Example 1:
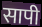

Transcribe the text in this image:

सापी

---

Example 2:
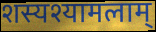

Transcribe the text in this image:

शस्यश्यामलाम्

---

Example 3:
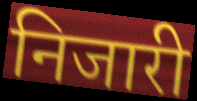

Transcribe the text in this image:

निजारी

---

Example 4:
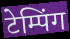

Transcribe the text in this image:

टेम्पिंग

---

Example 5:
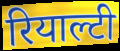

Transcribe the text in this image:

रियाल्टी